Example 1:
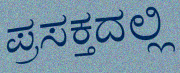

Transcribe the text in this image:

ಪ್ರಸಕ್ತದಲ್ಲಿ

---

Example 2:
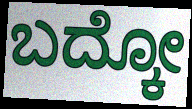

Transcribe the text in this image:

ಬದ್ಕೋ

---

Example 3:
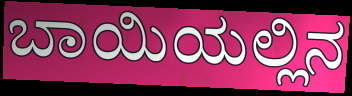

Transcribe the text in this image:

ಬಾಯಿಯಲ್ಲಿನ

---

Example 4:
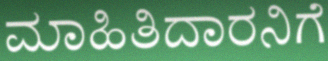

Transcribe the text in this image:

ಮಾಹಿತಿದಾರನಿಗೆ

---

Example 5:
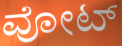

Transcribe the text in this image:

ವೋಟ್